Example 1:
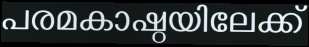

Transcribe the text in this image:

പരമകാഷ്ഠയിലേക്ക്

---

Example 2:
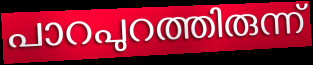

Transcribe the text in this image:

പാറപുറത്തിരുന്ന്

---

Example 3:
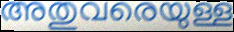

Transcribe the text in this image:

അതുവരെയുള്ള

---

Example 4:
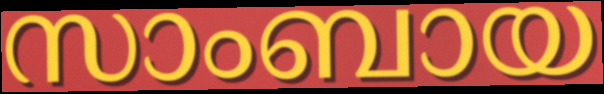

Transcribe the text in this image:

സാംബായ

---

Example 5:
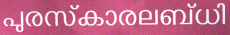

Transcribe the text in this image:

പുരസ്‌കാരലബ്ധി